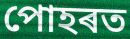
পোহৰত